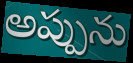
అప్పును